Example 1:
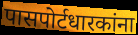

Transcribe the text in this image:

पासपोर्टधारकांना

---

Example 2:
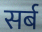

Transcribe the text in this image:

सर्ब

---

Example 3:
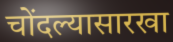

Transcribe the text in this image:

चोंदल्यासारखा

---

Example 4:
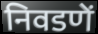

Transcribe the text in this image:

निवडणें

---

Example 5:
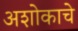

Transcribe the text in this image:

अशोकाचे